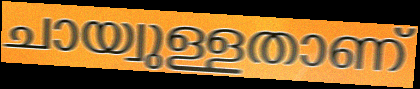
ചായ്വുള്ളതാണ്